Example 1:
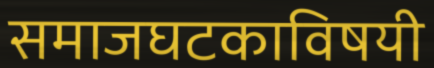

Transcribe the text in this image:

समाजघटकाविषयी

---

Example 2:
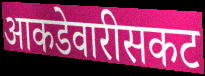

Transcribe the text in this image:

आकडेवारीसकट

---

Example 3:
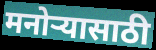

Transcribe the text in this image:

मनोऱ्यासाठी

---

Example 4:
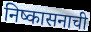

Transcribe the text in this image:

निष्कासनाची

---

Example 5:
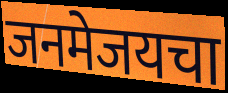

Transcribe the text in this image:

जनमेजयचा